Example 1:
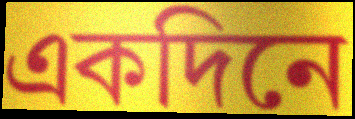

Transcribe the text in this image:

একদিনে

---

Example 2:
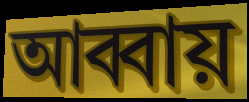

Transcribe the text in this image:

আব্বায়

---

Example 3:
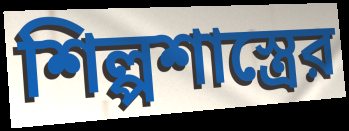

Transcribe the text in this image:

শিল্পশাস্ত্রের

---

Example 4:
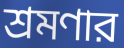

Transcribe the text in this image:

শ্রমণার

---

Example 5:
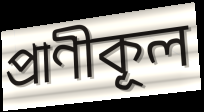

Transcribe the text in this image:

প্রাণীকূল